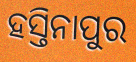
ହସ୍ତିନାପୁର